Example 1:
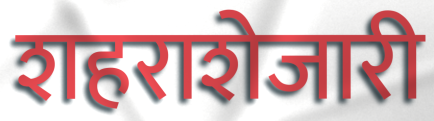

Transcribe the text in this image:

शहराशेजारी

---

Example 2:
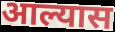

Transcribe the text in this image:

आल्यास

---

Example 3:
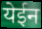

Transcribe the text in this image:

येईन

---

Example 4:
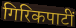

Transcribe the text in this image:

गिरिकपाटीं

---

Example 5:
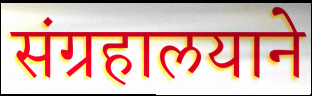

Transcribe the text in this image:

संग्रहालयाने